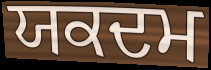
ਯਕਦਮ